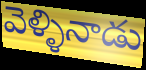
వెళ్ళినాడు